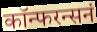
कॉन्फरन्सनं